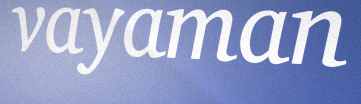
vayaman